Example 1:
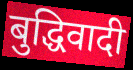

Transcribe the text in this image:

बुद्धिवादी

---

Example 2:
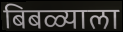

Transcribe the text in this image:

बिबळ्याला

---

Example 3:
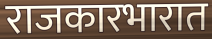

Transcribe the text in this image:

राजकारभारात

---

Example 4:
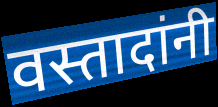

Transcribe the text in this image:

वस्तादांनी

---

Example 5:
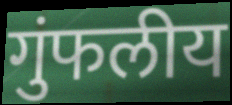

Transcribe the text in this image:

गुंफलीय